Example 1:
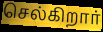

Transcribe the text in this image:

செல்கிறார்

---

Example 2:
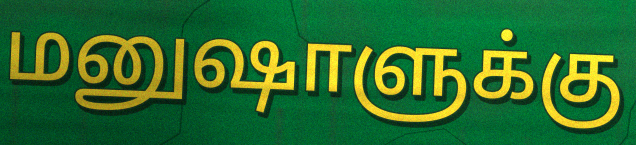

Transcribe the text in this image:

மனுஷாளுக்கு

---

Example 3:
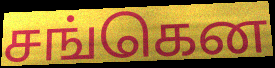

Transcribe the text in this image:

சங்கென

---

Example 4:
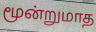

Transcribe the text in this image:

மூன்றுமாத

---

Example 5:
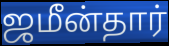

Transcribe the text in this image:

ஜமீன்தார்